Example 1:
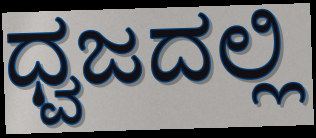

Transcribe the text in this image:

ಧ್ವಜದಲ್ಲಿ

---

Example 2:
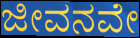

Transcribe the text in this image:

ಜೀವನವೇ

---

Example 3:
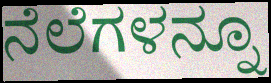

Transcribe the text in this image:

ನೆಲೆಗಳನ್ನೂ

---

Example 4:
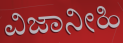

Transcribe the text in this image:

ವಿಜಾನೀಹಿ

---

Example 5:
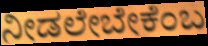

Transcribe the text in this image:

ನೀಡಲೇಬೇಕೆಂಬ